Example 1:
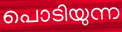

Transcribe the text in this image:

പൊടിയുന്ന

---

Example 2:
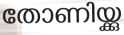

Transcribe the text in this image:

തോണിയ്ക്കു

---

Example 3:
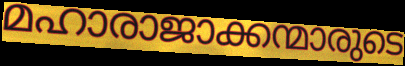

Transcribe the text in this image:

മഹാരാജാക്കന്മാരുടെ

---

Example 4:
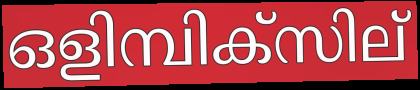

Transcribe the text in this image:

ഒളിമ്പിക്സില്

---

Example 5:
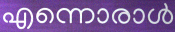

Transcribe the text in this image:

എന്നൊരാൾ